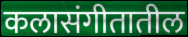
कलासंगीतातील